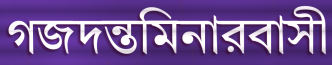
গজদন্তমিনারবাসী